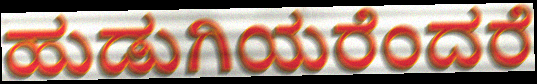
ಹುಡುಗಿಯರೆಂದರೆ